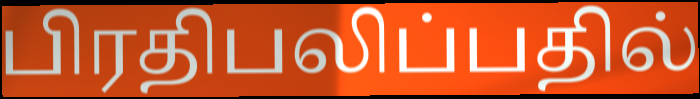
பிரதிபலிப்பதில்